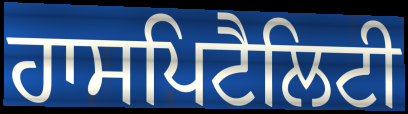
ਹਾਸਪਿਟੈਲਿਟੀ